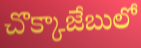
చొక్కాజేబులో